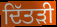
ਦਿੱਤੜੀ